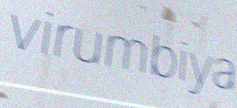
virumbiya